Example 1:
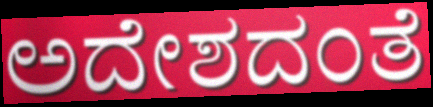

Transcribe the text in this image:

ಅದೇಶದಂತೆ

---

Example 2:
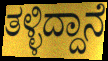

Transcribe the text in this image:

ತಳ್ಳಿದ್ದಾನೆ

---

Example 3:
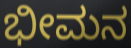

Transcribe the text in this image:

ಭೀಮನ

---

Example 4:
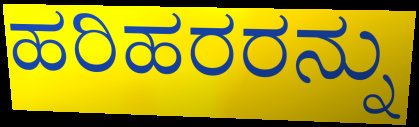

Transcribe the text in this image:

ಹರಿಹರರನ್ನು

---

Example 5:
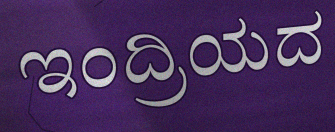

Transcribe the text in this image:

ಇಂದ್ರಿಯದ